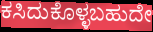
ಕಸಿದುಕೊಳ್ಳಬಹುದೇ